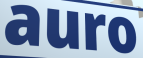
auro